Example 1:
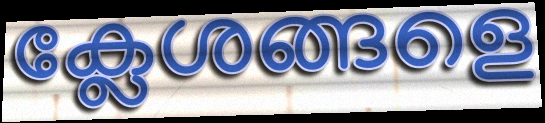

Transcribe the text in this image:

ക്ലേശങ്ങളെ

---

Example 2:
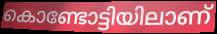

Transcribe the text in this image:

കൊണ്ടോട്ടിയിലാണ്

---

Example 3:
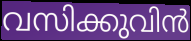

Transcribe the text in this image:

വസിക്കുവിൻ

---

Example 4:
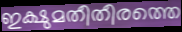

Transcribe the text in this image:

ഇക്ഷുമതീതീരത്തെ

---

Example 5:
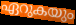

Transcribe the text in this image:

ഏറുകയും